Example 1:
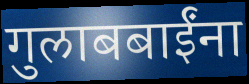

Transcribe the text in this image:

गुलाबबाईंना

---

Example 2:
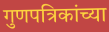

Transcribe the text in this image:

गुणपत्रिकांच्या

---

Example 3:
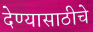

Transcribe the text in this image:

देण्यासाठीचे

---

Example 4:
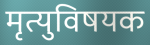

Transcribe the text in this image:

मृत्युविषयक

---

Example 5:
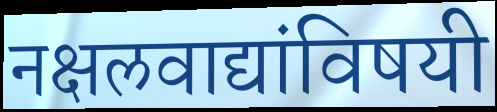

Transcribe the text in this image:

नक्षलवाद्यांविषयी